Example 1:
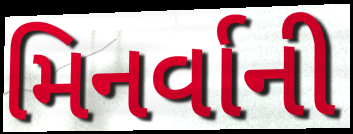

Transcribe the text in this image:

મિનર્વાની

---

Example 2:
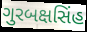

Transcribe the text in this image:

ગુરબક્ષસિંહ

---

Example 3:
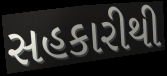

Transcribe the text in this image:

સહકારીથી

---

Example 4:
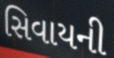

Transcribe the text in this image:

સિવાયની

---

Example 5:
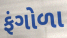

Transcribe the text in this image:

ફંગોળા